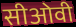
सीओवी